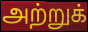
அற்றுக்